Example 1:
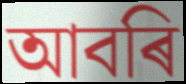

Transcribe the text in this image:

আবৰি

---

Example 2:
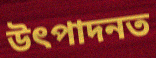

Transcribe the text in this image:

উৎপাদনত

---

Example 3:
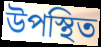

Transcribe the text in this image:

উপস্থিত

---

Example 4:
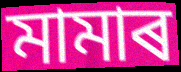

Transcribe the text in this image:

মামাৰ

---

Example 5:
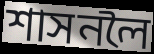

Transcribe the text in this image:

শাসনলৈ